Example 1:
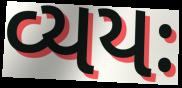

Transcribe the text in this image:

વ્યયઃ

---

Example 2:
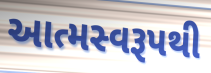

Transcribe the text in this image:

આત્મસ્વરૂપથી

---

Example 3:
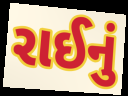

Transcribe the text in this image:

રાઈનું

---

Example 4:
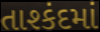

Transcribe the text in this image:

તાશ્કંદમાં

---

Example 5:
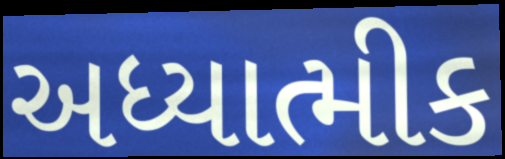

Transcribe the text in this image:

અધ્યાત્મીક